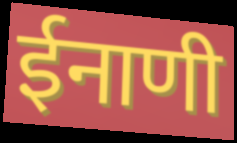
ईनाणी